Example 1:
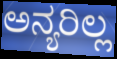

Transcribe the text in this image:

ಅನ್ಯರಿಲ್ಲ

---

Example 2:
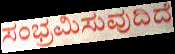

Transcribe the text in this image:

ಸಂಭ್ರಮಿಸುವುದಿದೆ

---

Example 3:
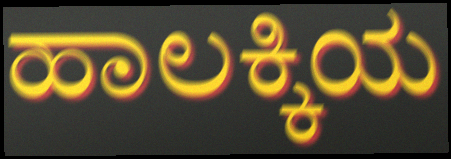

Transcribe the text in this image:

ಹಾಲಕ್ಕಿಯ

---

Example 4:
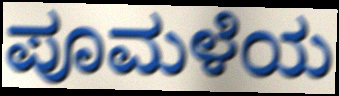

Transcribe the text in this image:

ಪೂಮಳೆಯ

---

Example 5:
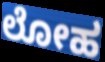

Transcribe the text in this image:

ಲೋಹ